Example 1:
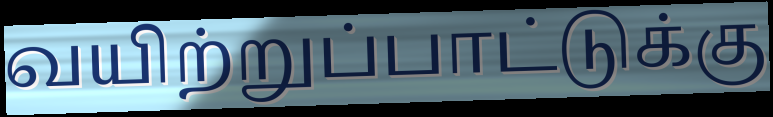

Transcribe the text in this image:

வயிற்றுப்பாட்டுக்கு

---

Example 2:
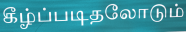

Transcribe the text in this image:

கீழ்ப்படிதலோடும்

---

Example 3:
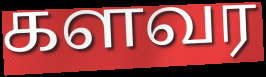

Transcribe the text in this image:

களவர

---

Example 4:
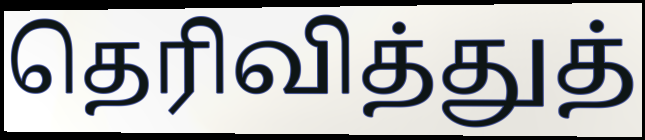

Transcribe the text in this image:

தெரிவித்துத்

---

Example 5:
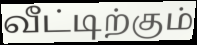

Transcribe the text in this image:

வீட்டிற்கும்